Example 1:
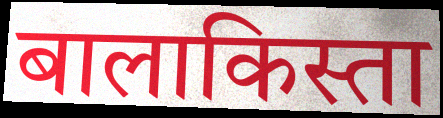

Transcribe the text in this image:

बालाकिस्ता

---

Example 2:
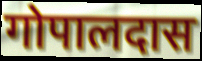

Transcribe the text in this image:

गोपालदास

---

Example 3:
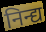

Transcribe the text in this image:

निन्द्य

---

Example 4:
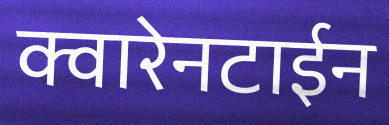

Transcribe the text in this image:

क्वारेनटाईन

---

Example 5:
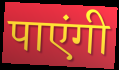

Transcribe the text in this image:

पाएंगी